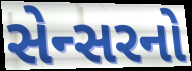
સેન્સરનો